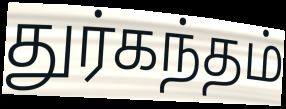
துர்கந்தம்